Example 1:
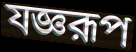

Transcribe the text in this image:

যজ্ঞরূপ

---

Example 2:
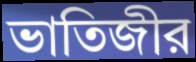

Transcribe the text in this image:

ভাতিজীর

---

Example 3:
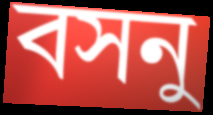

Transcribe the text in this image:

বসনু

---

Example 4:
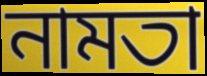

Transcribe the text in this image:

নামতা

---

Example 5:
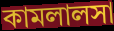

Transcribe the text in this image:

কামলালসা